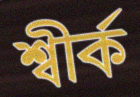
শ্বীৰ্ক